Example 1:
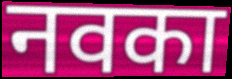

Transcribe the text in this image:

नवका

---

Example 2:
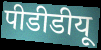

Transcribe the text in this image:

पीडीडीयू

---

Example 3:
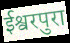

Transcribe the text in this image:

ईश्वरपुरा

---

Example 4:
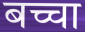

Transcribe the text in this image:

बच्‍चा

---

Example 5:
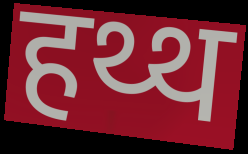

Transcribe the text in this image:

हथ्थ